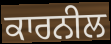
ਕਾਰਨੀਲ